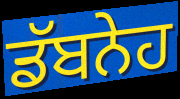
ਡੱਬਨੇਹ